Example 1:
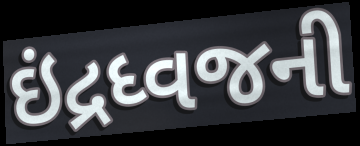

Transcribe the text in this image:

ઇંદ્રધ્વજની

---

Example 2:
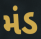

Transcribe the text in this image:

મંડ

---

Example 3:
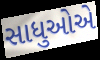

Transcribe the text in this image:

સાધુઓએ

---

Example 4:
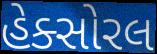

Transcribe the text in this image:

હેક્સોરલ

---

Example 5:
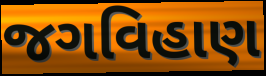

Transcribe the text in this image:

જગવિહાણ